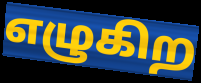
எழுகிற